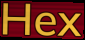
Hex